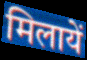
मिलायें